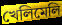
খেলিমেলি